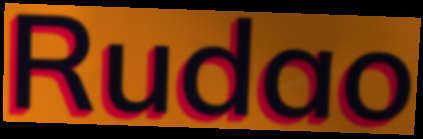
Rudao